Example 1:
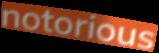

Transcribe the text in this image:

notorious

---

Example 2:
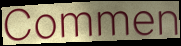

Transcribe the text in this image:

Commen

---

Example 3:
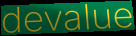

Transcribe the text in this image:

devalue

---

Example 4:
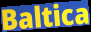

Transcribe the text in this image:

Baltica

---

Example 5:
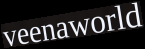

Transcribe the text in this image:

veenaworld